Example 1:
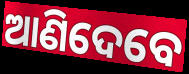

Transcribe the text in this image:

ଆଣିଦେବେ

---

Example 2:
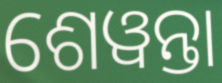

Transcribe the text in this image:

ଶେୱନ୍ତା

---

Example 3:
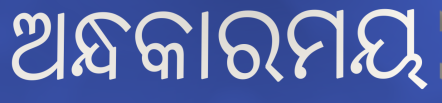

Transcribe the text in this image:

ଅନ୍ଧକାରମୟ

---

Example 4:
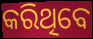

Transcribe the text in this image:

କରିଥିବେ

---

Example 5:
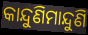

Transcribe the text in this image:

କାନ୍ଦୁଣିମାନ୍ଦୁଣି